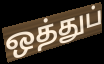
ஒத்துப்